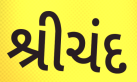
શ્રીચંદ